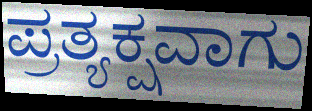
ಪ್ರತ್ಯಕ್ಷವಾಗು